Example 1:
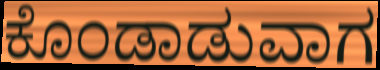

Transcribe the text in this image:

ಕೊಂಡಾಡುವಾಗ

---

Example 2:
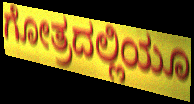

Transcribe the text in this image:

ಗೋತ್ರದಲ್ಲಿಯೂ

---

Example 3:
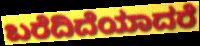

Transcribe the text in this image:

ಬರೆದಿದೆಯಾದರೆ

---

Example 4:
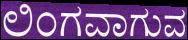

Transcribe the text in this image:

ಲಿಂಗವಾಗುವ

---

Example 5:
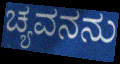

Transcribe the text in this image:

ಚ್ಯವನನು